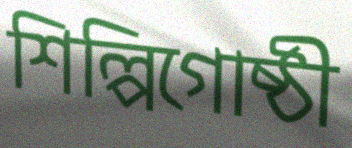
শিল্পিগোষ্ঠী